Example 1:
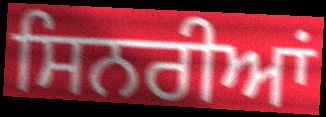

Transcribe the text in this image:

ਸਿਨਰੀਆਂ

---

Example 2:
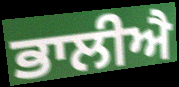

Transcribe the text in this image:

ਭਾਲੀਐ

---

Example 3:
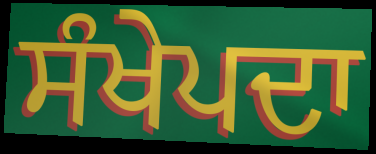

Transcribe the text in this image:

ਸੰਖੇਪਦਾ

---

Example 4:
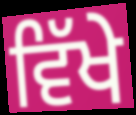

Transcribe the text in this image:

ਵਿੱਖੇ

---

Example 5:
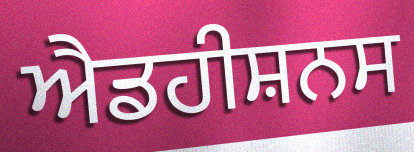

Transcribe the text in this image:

ਐਡਹੀਸ਼ਨਸ